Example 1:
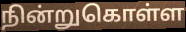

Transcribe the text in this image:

நின்றுகொள்ள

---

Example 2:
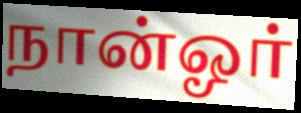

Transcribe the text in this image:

நான்ஓர்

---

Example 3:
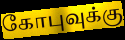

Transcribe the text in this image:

கோபுவுக்கு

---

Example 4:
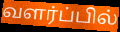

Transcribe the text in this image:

வளர்ப்பில்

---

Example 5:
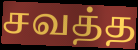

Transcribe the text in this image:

சவத்த